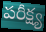
పరీక్ష్య